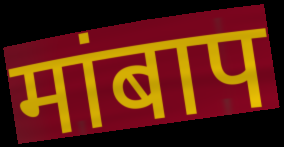
मांबाप